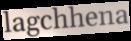
lagchhena